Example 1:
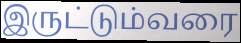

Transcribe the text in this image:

இருட்டும்வரை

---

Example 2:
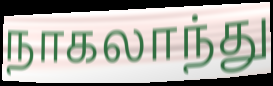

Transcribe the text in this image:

நாகலாந்து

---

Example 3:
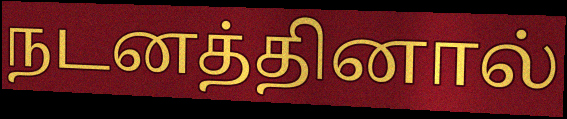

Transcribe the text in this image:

நடனத்தினால்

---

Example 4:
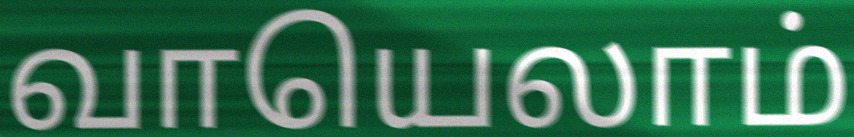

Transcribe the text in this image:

வாயெலாம்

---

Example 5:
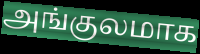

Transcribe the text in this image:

அங்குலமாக